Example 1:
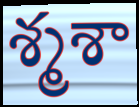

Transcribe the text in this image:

శ్మశా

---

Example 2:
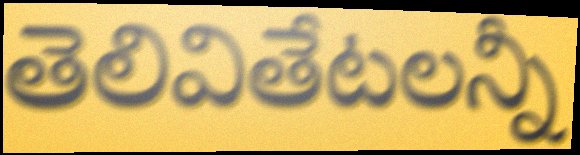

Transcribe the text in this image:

తెలివితేటలన్నీ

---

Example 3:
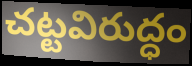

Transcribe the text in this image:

చట్టవిరుద్ధం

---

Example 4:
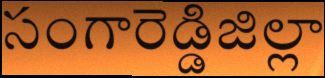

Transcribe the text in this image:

సంగారెడ్డిజిల్లా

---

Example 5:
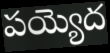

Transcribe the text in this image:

పయ్యెద